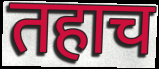
तहाच